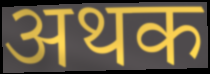
अथक